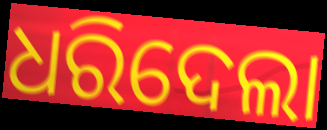
ଧରିଦେଲା